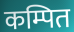
कम्पित